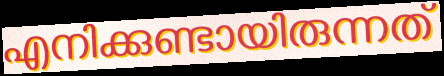
എനിക്കുണ്ടായിരുന്നത്